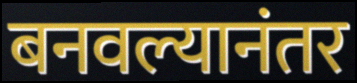
बनवल्यानंतर